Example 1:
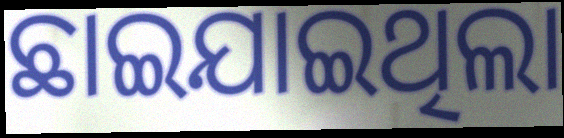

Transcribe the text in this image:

ଛାଇଯାଇଥିଲା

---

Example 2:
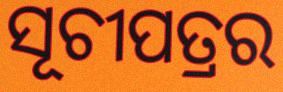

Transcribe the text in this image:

ସୂଚୀପତ୍ରର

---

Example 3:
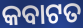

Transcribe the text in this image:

କବାଟତ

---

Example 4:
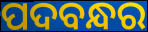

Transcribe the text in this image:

ପଦବନ୍ଧର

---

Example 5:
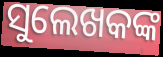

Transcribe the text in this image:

ସୁଲେଖକଙ୍କ